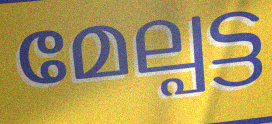
മേല്പട്ട